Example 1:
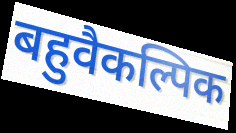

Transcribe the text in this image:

बहुवैकल्पिक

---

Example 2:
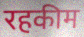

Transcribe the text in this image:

रहकीम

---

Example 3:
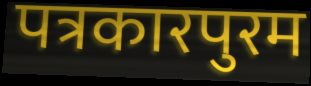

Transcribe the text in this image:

पत्रकारपुरम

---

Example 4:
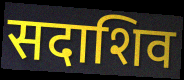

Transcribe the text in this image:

सदाशिव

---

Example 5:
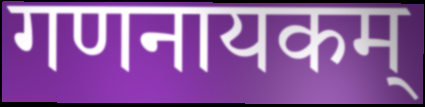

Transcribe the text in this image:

गणनायकम्